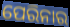
ପେରିନାର